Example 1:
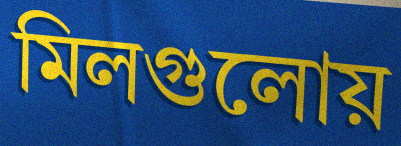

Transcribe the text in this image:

মিলগুলোয়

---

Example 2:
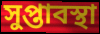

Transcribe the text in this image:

সুপ্তাবস্থা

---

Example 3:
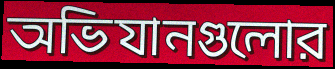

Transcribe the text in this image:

অভিযানগুলোর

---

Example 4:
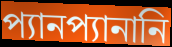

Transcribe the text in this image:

প্যানপ্যানানি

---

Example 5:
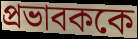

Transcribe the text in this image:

প্রভাবককে